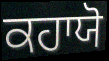
ਕਹਾਯੋ